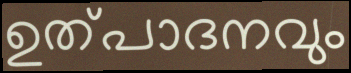
ഉത്പാദനവും